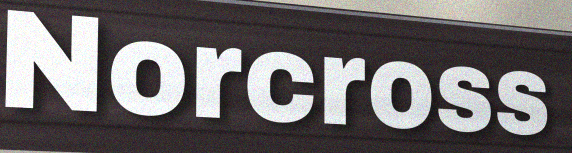
Norcross